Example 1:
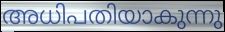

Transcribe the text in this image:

അധിപതിയാകുന്നു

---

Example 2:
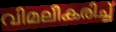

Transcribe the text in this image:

വിമലീകരിച്ച്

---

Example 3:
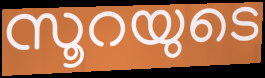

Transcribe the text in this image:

സൂറയുടെ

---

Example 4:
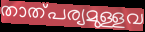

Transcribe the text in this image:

താത്പര്യമുള്ളവ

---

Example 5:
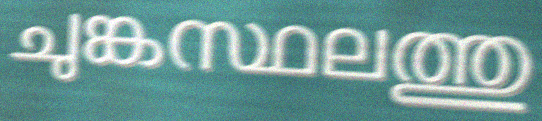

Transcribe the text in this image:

ചുങ്കസ്ഥലത്തു